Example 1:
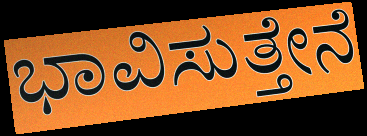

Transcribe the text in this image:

ಭಾವಿಸುತ್ತೇನೆ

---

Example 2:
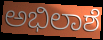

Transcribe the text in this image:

ಅಭಿಲಾಶೆ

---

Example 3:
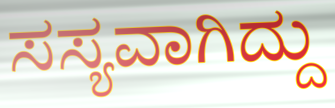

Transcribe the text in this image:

ಸಸ್ಯವಾಗಿದ್ದು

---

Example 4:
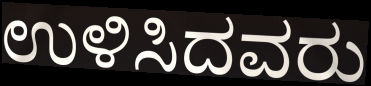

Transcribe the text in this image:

ಉಳಿಸಿದವರು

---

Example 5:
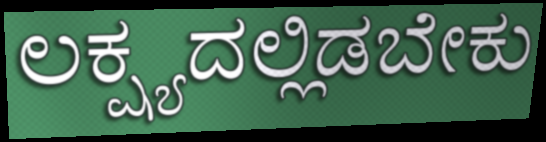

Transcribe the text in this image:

ಲಕ್ಷ್ಯದಲ್ಲಿಡಬೇಕು